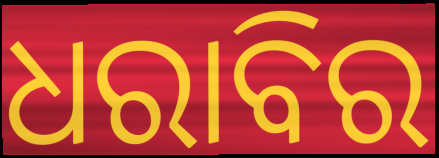
ଧରାବିର